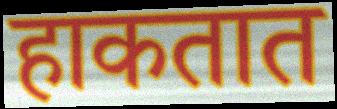
हाकतात